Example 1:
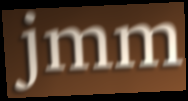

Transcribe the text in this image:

jmm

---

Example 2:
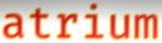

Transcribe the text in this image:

atrium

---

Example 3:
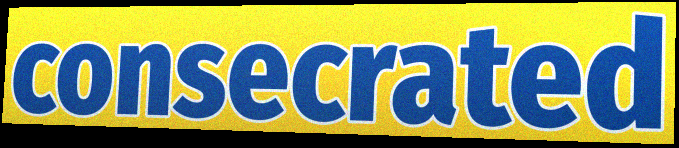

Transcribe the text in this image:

consecrated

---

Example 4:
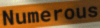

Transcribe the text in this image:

Numerous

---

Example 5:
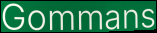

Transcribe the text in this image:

Gommans